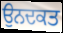
ਉਨਦਕਤ